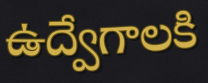
ఉద్వేగాలకి